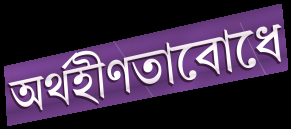
অর্থহীণতাবোধে